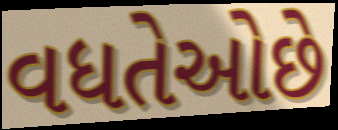
વધતેઓછે